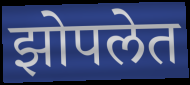
झोपलेत